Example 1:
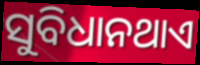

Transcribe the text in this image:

ସୁବିଧାନଥାଏ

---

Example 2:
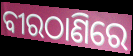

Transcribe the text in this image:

ବୀରଠାଣିରେ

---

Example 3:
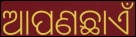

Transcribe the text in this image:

ଆପଣଛାଏଁ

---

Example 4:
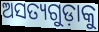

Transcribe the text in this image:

ଅସତ୍ୟଗୁଡ଼ାକୁ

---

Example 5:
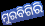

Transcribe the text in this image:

ମୁରବିଗିରି